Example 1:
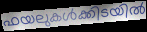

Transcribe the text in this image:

ഫയലുകൾക്കിടയിൽ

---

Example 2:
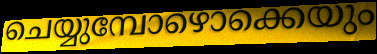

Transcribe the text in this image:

ചെയ്യുമ്പോഴൊക്കെയും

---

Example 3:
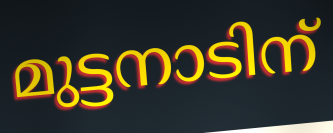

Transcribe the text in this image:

മുട്ടനാടിന്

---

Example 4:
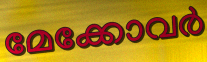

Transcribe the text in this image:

മേക്കോവർ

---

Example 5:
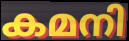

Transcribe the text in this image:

കമനി